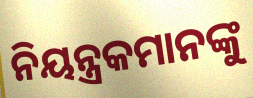
ନିୟନ୍ତ୍ରକମାନଙ୍କୁ